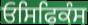
ਓਸਿਫਿਕੰਸ